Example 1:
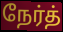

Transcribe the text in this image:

நேர்த்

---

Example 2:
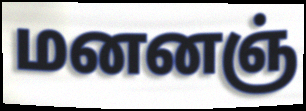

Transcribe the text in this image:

மனனஞ்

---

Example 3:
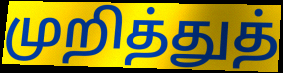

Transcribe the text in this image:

முறித்துத்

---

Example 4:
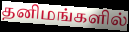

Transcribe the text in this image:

தனிமங்களில்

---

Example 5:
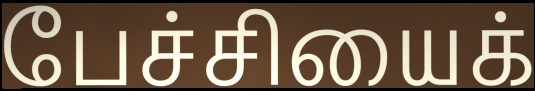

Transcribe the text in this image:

பேச்சியைக்